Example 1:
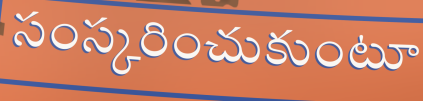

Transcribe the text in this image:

సంస్కరించుకుంటూ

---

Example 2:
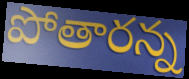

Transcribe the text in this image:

పోతారన్న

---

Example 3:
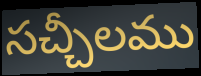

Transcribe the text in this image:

సచ్చీలము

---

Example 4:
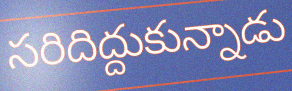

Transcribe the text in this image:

సరిదిద్దుకున్నాడు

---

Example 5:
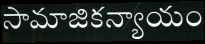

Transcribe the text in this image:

సామాజికన్యాయం